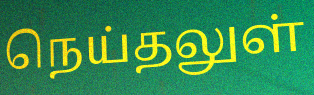
நெய்தலுள்